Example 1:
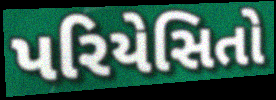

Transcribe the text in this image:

પરિયેસિતો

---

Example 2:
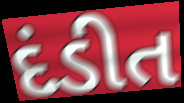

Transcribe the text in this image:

દંડીત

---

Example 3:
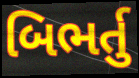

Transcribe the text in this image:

બિભર્તુ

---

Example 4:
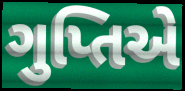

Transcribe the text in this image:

ગુપ્તિએ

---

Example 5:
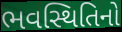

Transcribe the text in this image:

ભવસ્થિતિનો